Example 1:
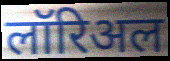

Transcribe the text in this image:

लॉरिअल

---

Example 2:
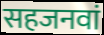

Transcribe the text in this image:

सहजनवां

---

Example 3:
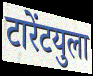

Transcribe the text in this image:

टारेंटयुला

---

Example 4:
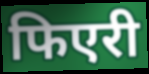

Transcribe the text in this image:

फिएरी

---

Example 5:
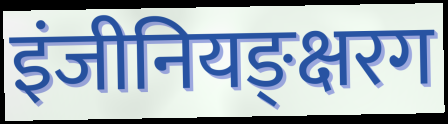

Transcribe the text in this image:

इंजीनियङ्क्षरग